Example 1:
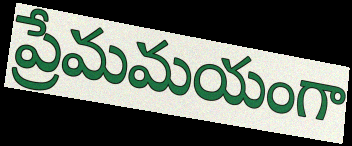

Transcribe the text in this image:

ప్రేమమయంగా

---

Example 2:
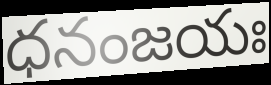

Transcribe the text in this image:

ధనంజయః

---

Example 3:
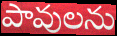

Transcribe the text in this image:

పావులను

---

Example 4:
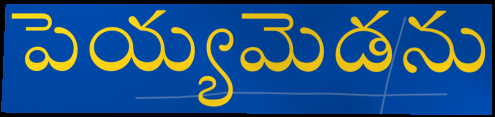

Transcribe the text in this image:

పెయ్యమెడను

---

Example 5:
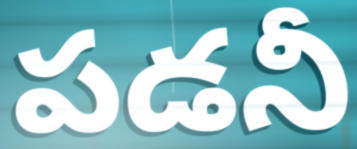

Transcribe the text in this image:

పడనీ